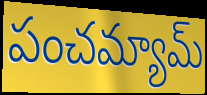
పంచమ్యామ్